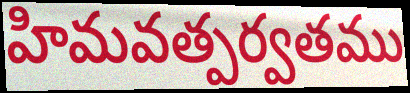
హిమవత్పర్వతము